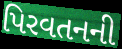
પિરવતનની